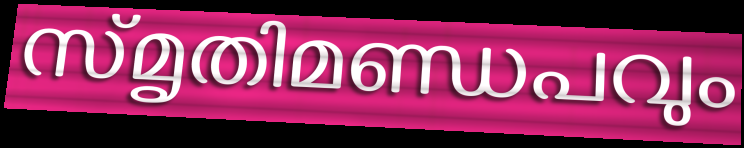
സ്മൃതിമണ്ഡപവും